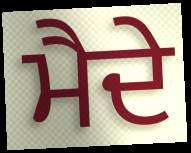
ਮੈਦੇ